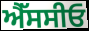
ਐੱਸਸੀਓ